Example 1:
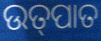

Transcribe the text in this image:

ଉତ୍‌ପାତ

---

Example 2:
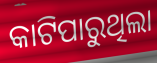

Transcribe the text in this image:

କାଟିପାରୁଥିଲା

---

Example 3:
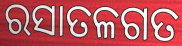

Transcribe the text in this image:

ରସାତଳଗତ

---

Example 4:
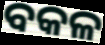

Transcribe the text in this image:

ବକଳ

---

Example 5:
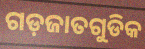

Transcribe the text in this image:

ଗଡ଼ଜାତଗୁଡିକ